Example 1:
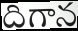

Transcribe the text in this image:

దిగాన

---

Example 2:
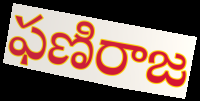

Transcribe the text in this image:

ఫణిరాజ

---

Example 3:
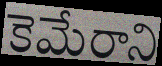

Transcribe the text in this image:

కెమేరాని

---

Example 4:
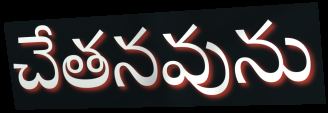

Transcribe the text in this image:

చేతనవును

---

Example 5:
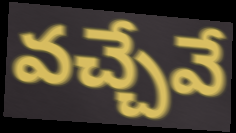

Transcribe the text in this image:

వచ్చేవే